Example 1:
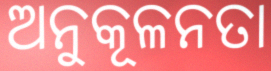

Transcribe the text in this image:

ଅନୁକୂଳନତା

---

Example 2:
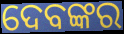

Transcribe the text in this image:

ଦେବଙ୍କର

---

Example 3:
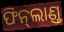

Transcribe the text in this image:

ଫିନ୍‌ଲାଣ୍ଡ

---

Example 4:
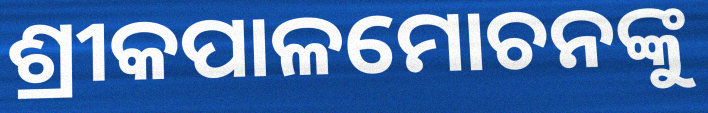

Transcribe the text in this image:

ଶ୍ରୀକପାଳମୋଚନଙ୍କୁ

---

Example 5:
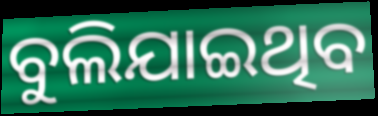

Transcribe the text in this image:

ବୁଲିଯାଇଥିବ